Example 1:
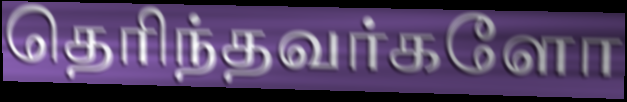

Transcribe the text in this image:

தெரிந்தவர்களோ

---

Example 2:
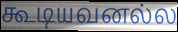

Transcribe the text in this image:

கூடியவனல்ல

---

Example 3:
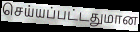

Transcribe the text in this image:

செய்யப்பட்டதுமான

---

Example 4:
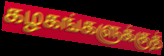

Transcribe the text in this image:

கழகங்களுக்குத்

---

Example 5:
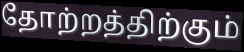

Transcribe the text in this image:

தோற்றத்திற்கும்